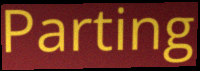
Parting